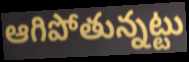
ఆగిపోతున్నట్టు